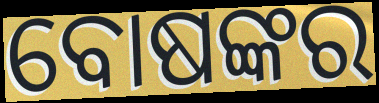
ବୋଷଙ୍କର